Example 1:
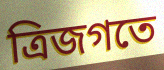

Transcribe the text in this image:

ত্রিজগতে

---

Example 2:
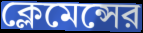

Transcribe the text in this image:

ক্লেমেন্সের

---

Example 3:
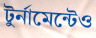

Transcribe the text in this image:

টুর্নামেন্টেও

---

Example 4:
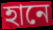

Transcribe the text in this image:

হানে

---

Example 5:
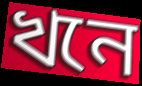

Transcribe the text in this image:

খনে